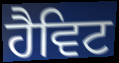
ਹੈਵਿਟ